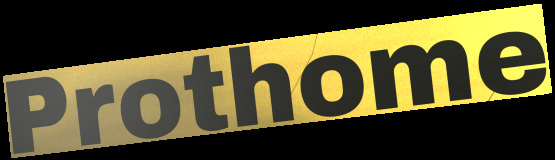
Prothome